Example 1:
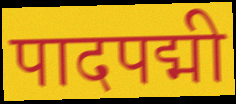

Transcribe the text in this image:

पादपद्मी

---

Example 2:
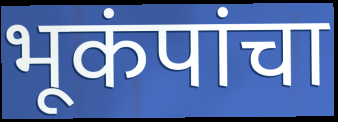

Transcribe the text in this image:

भूकंपांचा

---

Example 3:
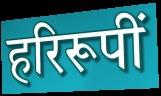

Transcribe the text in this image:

हरिरूपीं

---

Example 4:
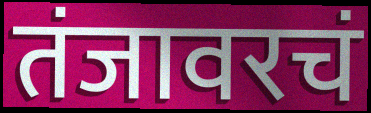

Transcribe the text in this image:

तंजावरचं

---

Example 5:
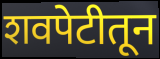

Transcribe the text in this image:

शवपेटीतून